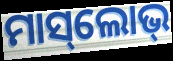
ମାସ୍‌ଲୋଭ୍